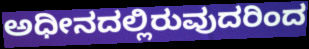
ಅಧೀನದಲ್ಲಿರುವುದರಿಂದ